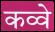
कव्वे